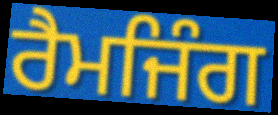
ਰੈਮਜਿੰਗ